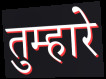
तुम्हारे